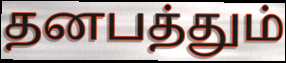
தனபத்தும்